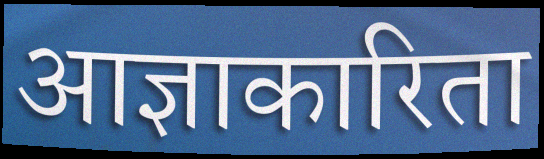
आज्ञाकारिता